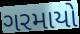
ગરમાયો